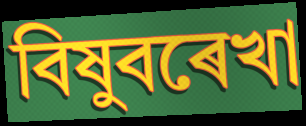
বিষুবৰেখা